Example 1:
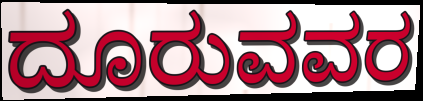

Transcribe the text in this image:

ದೂರುವವರ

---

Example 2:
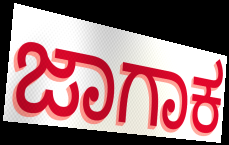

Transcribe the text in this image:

ಜಾಗಾಕ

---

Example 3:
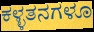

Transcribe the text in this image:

ಕಳ್ಳತನಗಳೂ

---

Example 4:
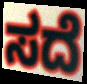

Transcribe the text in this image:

ಸದೆ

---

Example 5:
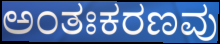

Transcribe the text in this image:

ಅಂತಃಕರಣವು